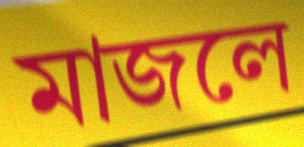
মাজলে